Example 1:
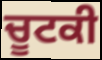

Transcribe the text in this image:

ਚੂਟਕੀ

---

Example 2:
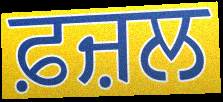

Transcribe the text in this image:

ਫ਼ਜ਼ਲ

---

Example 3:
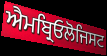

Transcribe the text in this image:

ਐਮਬ੍ਰਿਓਲੋਜਿਸਟ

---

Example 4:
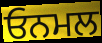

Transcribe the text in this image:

ਓਨਮਲ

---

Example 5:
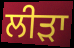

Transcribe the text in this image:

ਲੀੜਾ